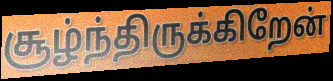
சூழ்ந்திருக்கிறேன்